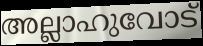
അല്ലാഹുവോട്